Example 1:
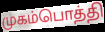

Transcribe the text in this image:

முகம்பொத்தி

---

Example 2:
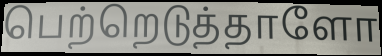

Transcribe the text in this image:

பெற்றெடுத்தாளோ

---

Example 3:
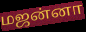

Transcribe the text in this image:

மஜன்னா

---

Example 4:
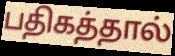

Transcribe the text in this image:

பதிகத்தால்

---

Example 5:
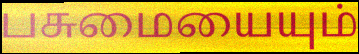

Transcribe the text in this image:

பசுமையையும்